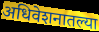
अधिवेशनातल्या